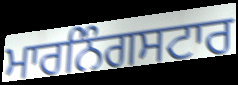
ਮਾਰਨਿੰਗਸਟਾਰ